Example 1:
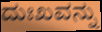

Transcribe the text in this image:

ದುಃಖವನ್ನು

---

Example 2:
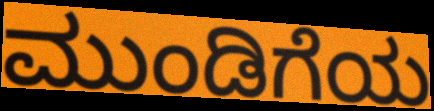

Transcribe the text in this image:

ಮುಂಡಿಗೆಯ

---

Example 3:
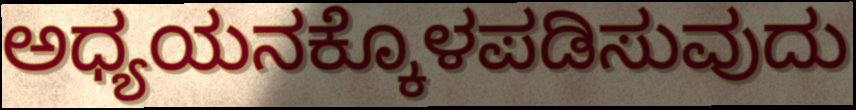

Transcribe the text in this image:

ಅಧ್ಯಯನಕ್ಕೊಳಪಡಿಸುವುದು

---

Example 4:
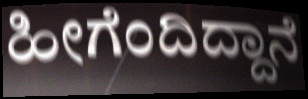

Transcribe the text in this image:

ಹೀಗೆಂದಿದ್ದಾನೆ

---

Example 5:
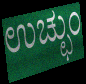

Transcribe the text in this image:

ಉಚ್ಛುಂ